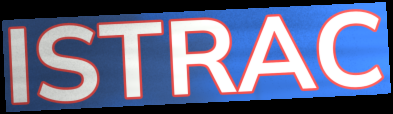
ISTRAC